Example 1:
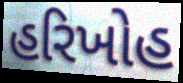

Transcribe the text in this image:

હરિખોહ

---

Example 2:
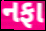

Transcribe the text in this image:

નફા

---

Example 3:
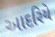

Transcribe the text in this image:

આદરિયે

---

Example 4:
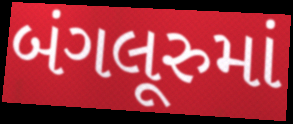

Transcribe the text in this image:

બંગલૂરુમાં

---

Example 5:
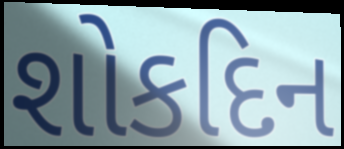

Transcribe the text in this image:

શોકદિન